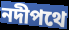
নদীপথে